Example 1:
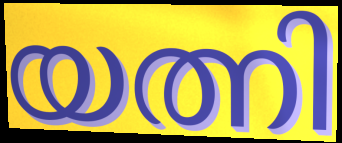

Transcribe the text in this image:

യത്നി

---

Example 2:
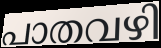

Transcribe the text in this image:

പാതവഴി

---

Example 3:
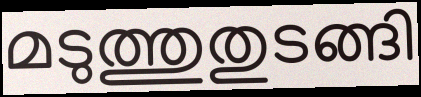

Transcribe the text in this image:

മടുത്തുതുടങ്ങി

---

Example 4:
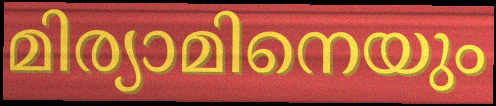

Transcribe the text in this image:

മിര്യാമിനെയും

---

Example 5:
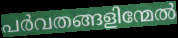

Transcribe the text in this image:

പർവതങ്ങളിന്മേൽ